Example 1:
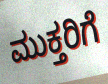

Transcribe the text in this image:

ಮುಕ್ತರಿಗೆ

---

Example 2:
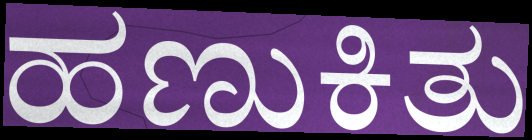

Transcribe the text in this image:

ಹಣುಕಿತು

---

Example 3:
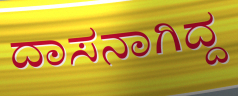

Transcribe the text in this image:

ದಾಸನಾಗಿದ್ದ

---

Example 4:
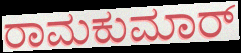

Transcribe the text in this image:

ರಾಮಕುಮಾರ್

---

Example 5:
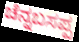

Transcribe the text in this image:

ಚೆನ್ನಬಸಪ್ಪ